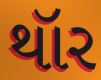
થૉર